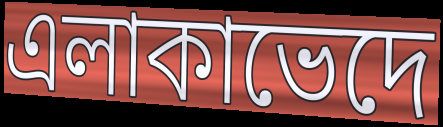
এলাকাভেদে